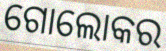
ଗୋଲୋକର